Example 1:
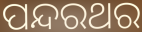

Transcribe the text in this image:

ପନ୍ଦରଥର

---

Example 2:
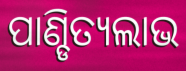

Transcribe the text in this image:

ପାଣ୍ଡିତ୍ୟଲାଭ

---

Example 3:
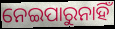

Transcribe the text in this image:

ନେଇପାରୁନାହିଁ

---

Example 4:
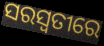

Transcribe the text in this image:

ସରସ୍ୱତୀରେ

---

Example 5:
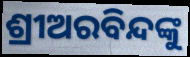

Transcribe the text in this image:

ଶ୍ରୀଅରବିନ୍ଦଙ୍କୁ